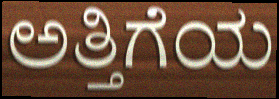
ಅತ್ತಿಗೆಯ